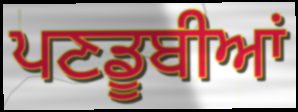
ਪਣਡੂਬੀਆਂ